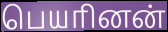
பெயரினன்